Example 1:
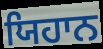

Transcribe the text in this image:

ਯਿਹਾਨ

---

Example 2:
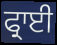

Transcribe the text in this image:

ਫ੍ਰਾਈ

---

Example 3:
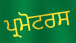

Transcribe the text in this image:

ਪ੍ਰਮੋਟਰਸ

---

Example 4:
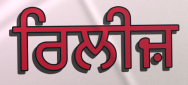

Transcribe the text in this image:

ਰਿਲੀਜ਼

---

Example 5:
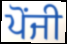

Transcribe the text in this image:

ਪੋਂਜੀ